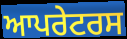
ਆਪਰੇਟਰਸ